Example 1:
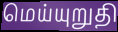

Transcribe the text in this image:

மெய்யுறுதி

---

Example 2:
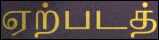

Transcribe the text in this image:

ஏற்படத்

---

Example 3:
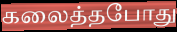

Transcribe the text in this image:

கலைத்தபோது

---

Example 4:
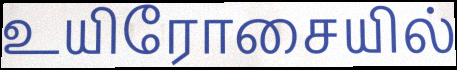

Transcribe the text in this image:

உயிரோசையில்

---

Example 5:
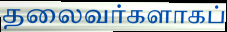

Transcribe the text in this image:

தலைவர்களாகப்